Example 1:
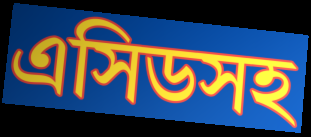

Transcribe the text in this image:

এসিডসহ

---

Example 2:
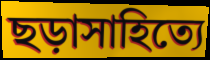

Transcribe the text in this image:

ছড়াসাহিত্যে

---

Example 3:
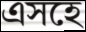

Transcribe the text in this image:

এসহে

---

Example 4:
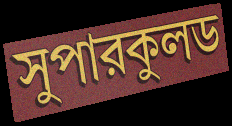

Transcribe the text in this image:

সুপারকুলড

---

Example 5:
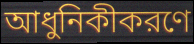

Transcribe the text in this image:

আধুনিকীকরণে